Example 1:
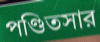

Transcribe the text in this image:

পণ্ডিতসার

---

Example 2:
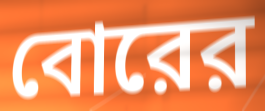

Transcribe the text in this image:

বোরের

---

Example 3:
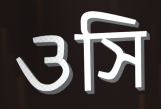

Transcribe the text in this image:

ওসি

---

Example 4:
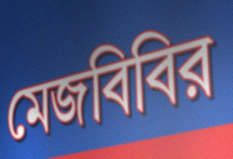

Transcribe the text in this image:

মেজবিবির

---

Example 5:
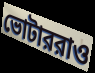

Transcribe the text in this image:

ভোটাররাও